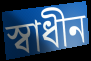
স্ৱাধীন